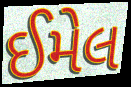
ઈમેલ